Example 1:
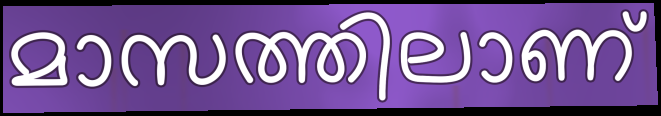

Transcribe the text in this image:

മാസത്തിലാണ്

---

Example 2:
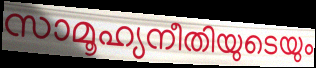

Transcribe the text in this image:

സാമൂഹ്യനീതിയുടെയും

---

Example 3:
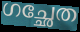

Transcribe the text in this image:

ഗച്ഛേത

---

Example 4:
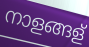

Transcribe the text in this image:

നാളങ്ങള്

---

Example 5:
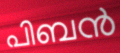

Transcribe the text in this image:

പിബൻ